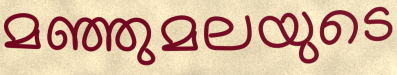
മഞ്ഞുമലയുടെ